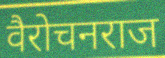
वैरोचनराज